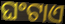
ଘଂଟାଏ